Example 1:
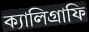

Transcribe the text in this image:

ক্যালিগ্রাফি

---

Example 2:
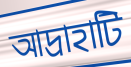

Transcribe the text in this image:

আদ্রাহাটি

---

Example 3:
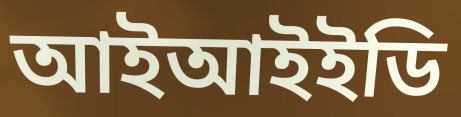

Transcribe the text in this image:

আইআইইডি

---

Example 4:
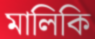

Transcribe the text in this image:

মালিকি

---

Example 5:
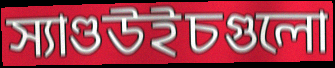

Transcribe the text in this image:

স্যাণ্ডউইচগুলো